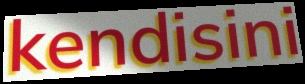
kendisini